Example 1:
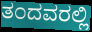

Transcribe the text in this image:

ತಂದವರಲ್ಲಿ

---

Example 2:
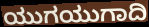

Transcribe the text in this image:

ಯುಗಯುಗಾದಿ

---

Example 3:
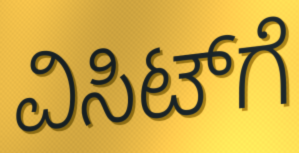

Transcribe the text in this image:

ವಿಸಿಟ್‌ಗೆ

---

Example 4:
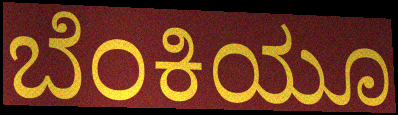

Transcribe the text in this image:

ಬೆಂಕಿಯೂ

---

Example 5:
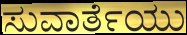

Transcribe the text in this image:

ಸುವಾರ್ತೆಯು